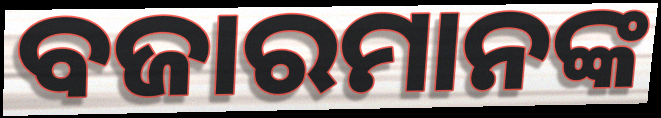
ବଜାରମାନଙ୍କ